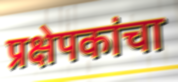
प्रक्षेपकांचा